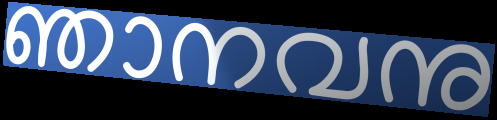
ഞാനവനു